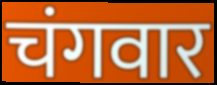
चंगवार